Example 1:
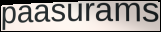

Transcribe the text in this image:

paasurams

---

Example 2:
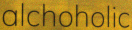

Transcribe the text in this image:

alchoholic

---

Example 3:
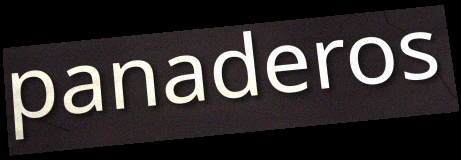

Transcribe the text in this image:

panaderos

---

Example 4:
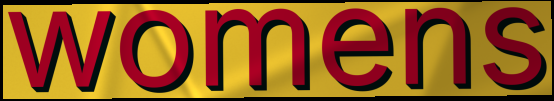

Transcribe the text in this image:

womens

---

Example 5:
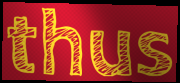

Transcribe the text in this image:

thus